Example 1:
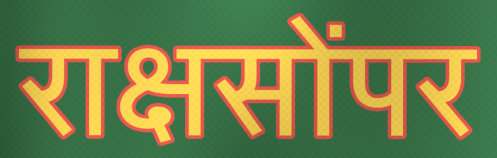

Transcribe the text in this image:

राक्षसोंपर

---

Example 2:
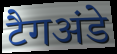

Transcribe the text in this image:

टैगअंडे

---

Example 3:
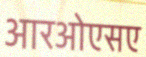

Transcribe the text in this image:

आरओएसए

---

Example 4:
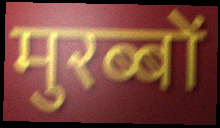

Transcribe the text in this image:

मुरब्बों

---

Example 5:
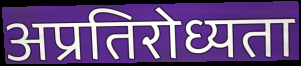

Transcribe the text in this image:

अप्रतिरोध्यता